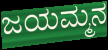
ಜಯಮ್ಮನ